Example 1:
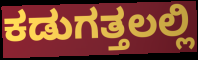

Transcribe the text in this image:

ಕಡುಗತ್ತಲಲ್ಲಿ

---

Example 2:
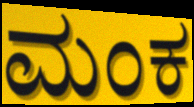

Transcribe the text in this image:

ಮಂಕ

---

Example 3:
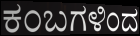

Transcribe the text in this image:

ಕಂಬಗಳಿಂದ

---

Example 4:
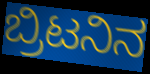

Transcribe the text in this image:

ಬ್ರಿಟನಿನ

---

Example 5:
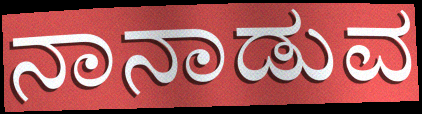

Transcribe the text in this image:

ನಾನಾಡುವ